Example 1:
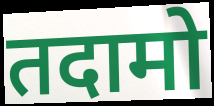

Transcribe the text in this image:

तदामो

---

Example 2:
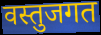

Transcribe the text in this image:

वस्तुजगत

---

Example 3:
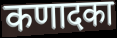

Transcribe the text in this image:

कणादका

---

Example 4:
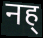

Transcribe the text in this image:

नह्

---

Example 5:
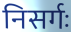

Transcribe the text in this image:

निसर्गः